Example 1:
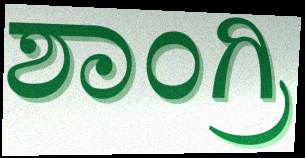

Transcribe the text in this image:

ಶಾಂಗ್ರಿ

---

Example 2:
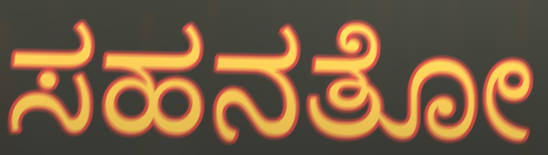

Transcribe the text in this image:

ಸಹನತೋ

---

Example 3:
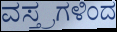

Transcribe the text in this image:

ವಸ್ತ್ರಗಳಿಂದ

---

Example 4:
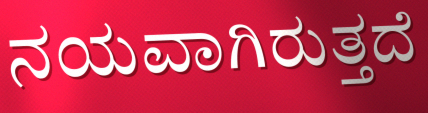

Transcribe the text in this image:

ನಯವಾಗಿರುತ್ತದೆ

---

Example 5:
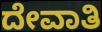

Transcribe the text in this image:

ದೇವಾತಿ